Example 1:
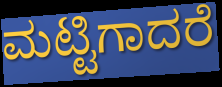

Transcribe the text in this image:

ಮಟ್ಟಿಗಾದರೆ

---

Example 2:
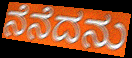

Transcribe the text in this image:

ನೆನೆದನು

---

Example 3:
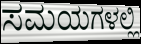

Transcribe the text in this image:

ಸಮಯಗಳಲ್ಲಿ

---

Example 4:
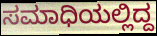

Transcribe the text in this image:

ಸಮಾಧಿಯಲ್ಲಿದ್ದ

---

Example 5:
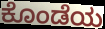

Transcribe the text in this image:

ಕೊಂಡೆಯ